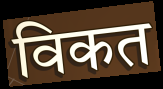
विकत